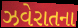
ઝવેરાતના